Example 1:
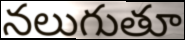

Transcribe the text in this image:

నలుగుతూ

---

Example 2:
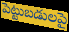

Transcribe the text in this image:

పెట్టుబడులపై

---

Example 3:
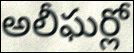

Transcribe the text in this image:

అలీఘర్లో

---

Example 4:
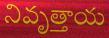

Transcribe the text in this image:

నివృత్తాయ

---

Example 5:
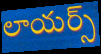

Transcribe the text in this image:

లాయర్స్